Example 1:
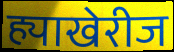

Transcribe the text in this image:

ह्याखेरीज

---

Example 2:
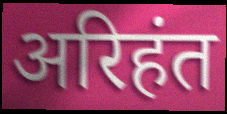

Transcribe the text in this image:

अरिहंत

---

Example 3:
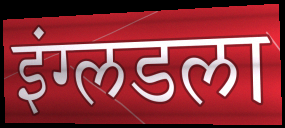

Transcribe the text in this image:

इंग्लडला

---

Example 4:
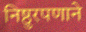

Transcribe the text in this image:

निष्ठुरपणाने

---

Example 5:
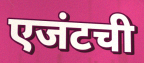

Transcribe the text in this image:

एजंटची